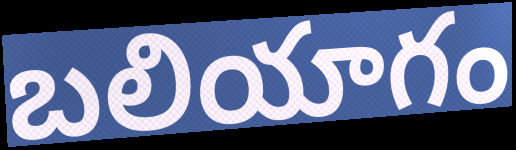
బలియాగం